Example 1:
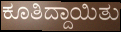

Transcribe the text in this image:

ಕೂತಿದ್ದಾಯಿತು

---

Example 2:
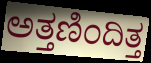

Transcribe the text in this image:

ಅತ್ತಣಿಂದಿತ್ತ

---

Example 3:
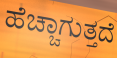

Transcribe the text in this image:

ಹೆಚ್ಚಾಗುತ್ತದೆ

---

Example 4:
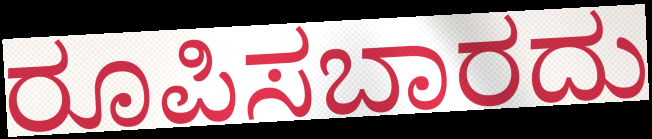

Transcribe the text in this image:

ರೂಪಿಸಬಾರದು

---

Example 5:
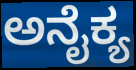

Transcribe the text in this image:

ಅನೈಕ್ಯ